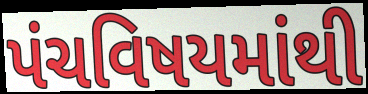
પંચવિષયમાંથી